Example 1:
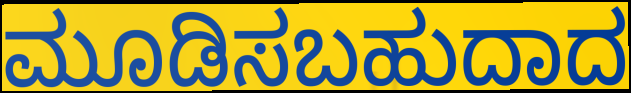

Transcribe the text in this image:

ಮೂಡಿಸಬಹುದಾದ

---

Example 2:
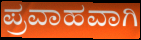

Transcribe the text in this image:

ಪ್ರವಾಹವಾಗಿ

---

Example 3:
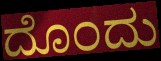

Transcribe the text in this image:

ದೊಂದು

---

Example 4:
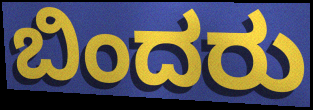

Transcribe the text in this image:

ಬಿಂದರು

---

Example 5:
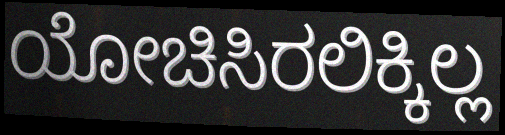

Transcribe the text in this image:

ಯೋಚಿಸಿರಲಿಕ್ಕಿಲ್ಲ